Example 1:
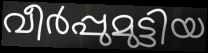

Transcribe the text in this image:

വീർപ്പുമുട്ടിയ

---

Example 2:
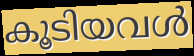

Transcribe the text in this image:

കൂടിയവൾ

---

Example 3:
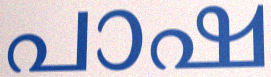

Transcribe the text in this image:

പാഷ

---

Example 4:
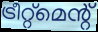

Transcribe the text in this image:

ട്രീറ്റ്മെന്റ്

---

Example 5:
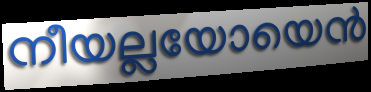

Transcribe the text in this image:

നീയല്ലയോയെൻ